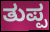
ತುಪ್ಪ